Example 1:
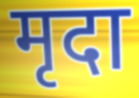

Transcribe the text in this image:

मृदा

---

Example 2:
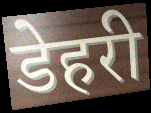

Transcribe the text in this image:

डेहरी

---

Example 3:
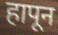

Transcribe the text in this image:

हापून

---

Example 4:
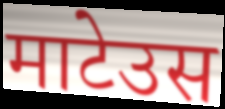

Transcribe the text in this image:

माटेउस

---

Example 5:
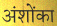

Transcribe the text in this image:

अंशोंका